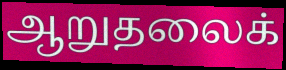
ஆறுதலைக்